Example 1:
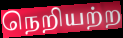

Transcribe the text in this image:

நெறியற்ற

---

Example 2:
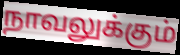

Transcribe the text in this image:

நாவலுக்கும்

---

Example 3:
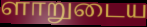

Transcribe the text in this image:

ளாறுடைய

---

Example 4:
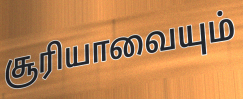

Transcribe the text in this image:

சூரியாவையும்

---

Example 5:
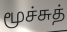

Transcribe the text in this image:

மூச்சுத்